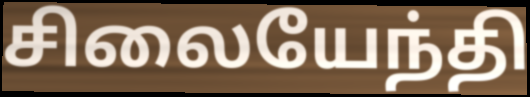
சிலையேந்தி